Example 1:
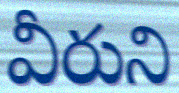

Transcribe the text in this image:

వీరుని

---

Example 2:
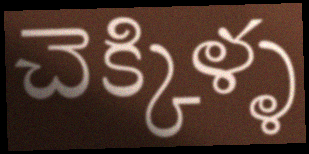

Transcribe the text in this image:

చెక్కిళ్ళ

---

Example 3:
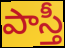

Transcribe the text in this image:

పాస్తీ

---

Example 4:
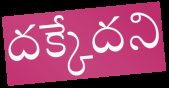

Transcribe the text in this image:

దక్కేదని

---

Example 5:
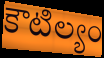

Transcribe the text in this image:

కౌటిల్యం